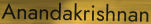
Anandakrishnan